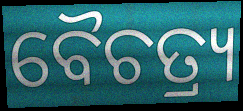
ବୈଚତ୍ର୍ୟ